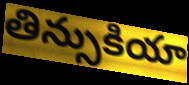
తిన్సుకియా